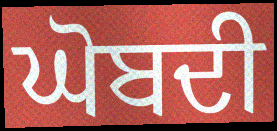
ਘੋਬਦੀ